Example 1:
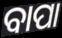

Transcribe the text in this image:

ବାପା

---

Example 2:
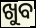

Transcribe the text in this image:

ଖୁବ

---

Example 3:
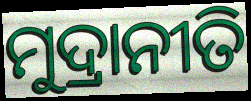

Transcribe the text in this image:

ମୁଦ୍ରାନୀତି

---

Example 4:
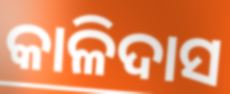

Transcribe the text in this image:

କାଳିଦାସ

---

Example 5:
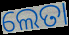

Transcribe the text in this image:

ଲେତା